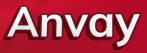
Anvay